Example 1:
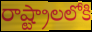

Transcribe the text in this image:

రాష్ట్రాలలోకి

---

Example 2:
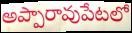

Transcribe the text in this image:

అప్పారావుపేటలో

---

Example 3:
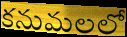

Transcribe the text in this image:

కనుమలలో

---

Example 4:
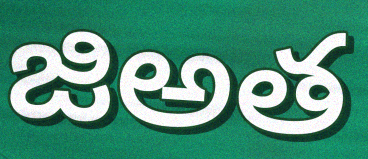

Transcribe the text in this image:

జిఅత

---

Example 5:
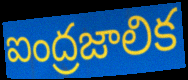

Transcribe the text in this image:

ఐంద్రజాలిక